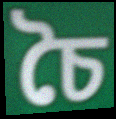
চৈ